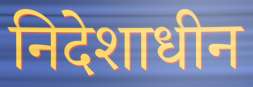
निदेशाधीन